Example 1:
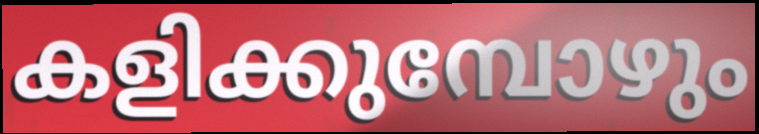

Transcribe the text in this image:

കളിക്കുമ്പോഴും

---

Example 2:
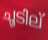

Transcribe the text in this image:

ചൂടില്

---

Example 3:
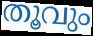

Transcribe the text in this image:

തൂവും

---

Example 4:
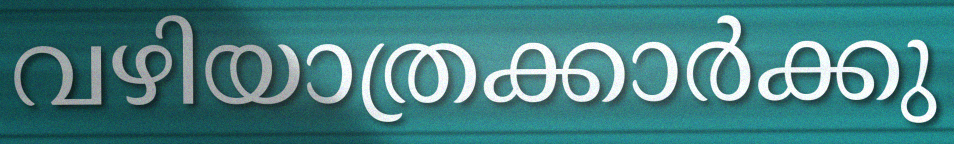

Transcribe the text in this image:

വഴിയാത്രക്കാർക്കു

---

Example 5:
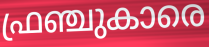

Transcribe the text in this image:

ഫ്രഞ്ചുകാരെ